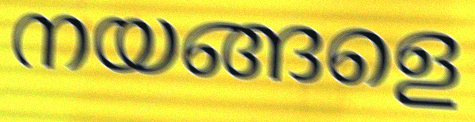
നയങ്ങളെ